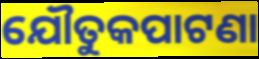
ଯୌତୁକପାଟଣା